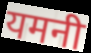
यमनी